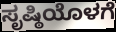
ಸೃಷ್ಠಿಯೊಳಗೆ